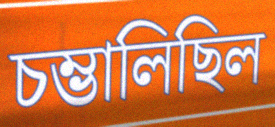
চম্ভালিছিল